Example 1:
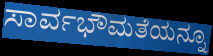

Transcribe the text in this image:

ಸಾರ್ವಭೌಮತೆಯನ್ನೂ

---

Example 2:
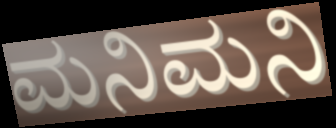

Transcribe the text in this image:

ಮನಿಮನಿ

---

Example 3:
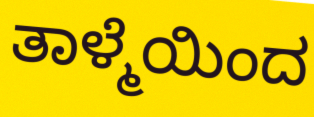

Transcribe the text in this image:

ತಾಳ್ಮೆಯಿಂದ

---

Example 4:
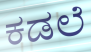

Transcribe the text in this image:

ಕಡಲೆ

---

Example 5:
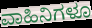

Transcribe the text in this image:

ವಾಹಿನಿಗಳೂ